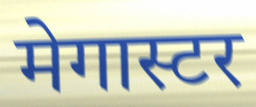
मेगास्टर